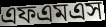
এফএমএস